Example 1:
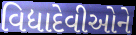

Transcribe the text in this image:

વિદ્યાદેવીઓને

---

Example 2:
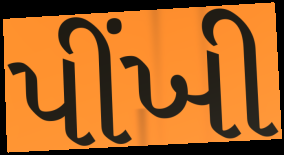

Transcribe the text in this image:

પીંખી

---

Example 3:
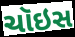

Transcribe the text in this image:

ચૉઇસ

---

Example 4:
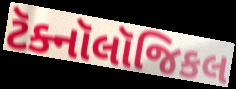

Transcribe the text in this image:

ટૅક્નૉલૉજિકલ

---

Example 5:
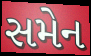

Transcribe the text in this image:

સમેન